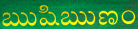
ఋషిఋణం